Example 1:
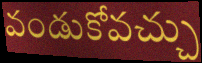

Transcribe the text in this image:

వండుకోవచ్చు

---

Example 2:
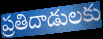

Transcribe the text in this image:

ప్రతిదాడులకు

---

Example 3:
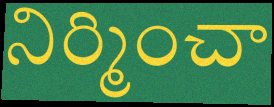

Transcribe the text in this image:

నిర్మించా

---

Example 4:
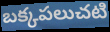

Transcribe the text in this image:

బక్కపలుచటి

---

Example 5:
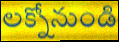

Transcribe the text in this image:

లక్నోనుండి